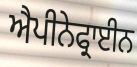
ਐਪੀਨੇਫ੍ਰਾਈਨ